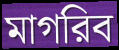
মাগরিব